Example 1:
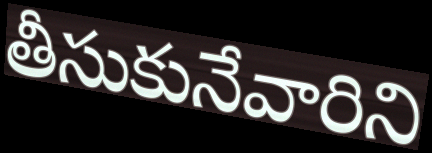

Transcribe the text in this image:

తీసుకునేవారిని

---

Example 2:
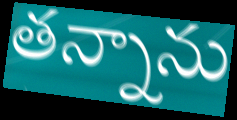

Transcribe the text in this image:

తన్నాను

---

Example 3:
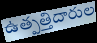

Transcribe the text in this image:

ఉత్పత్తిదారుల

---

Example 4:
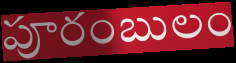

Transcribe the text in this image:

పూరంబులం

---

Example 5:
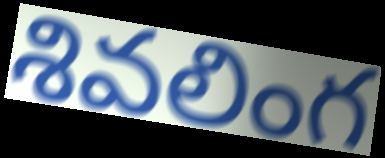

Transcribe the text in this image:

శివలింగ